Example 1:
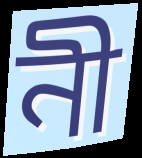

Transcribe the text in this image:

নী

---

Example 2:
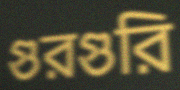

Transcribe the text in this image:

গুরগুরি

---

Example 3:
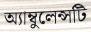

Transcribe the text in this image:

অ্যাম্বুলেন্সটি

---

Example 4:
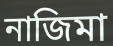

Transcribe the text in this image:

নাজিমা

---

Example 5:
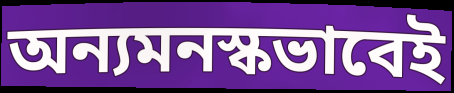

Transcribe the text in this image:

অন্যমনস্কভাবেই